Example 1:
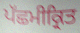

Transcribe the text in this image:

ਪੱਛਮੀਕ੍ਰਿਤ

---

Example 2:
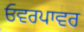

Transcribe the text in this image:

ਓਵਰਪਾਵਰ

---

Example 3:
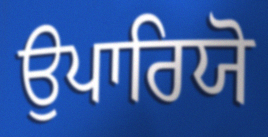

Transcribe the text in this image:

ਉਪਾਰਿਯੋ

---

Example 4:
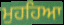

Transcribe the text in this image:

ਮੁਹਹਿਆ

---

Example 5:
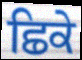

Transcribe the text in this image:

ਛਿਕੇ